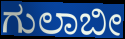
ಗುಲಾಬೀ